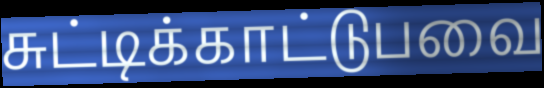
சுட்டிக்காட்டுபவை